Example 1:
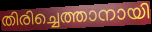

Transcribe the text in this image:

തിരിച്ചെത്താനായി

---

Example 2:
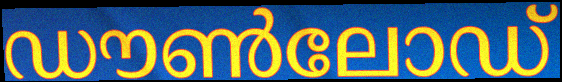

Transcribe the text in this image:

ഡൗൺലോഡ്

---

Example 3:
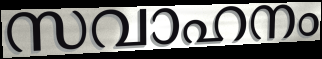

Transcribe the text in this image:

സവാഹനം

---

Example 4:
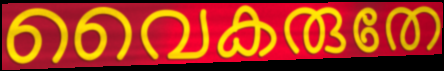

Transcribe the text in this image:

വൈകരുതേ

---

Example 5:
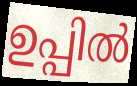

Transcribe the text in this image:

ഉപ്പിൽ